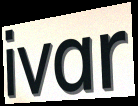
ivar